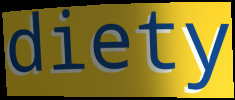
diety